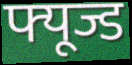
फ्यूज्ड